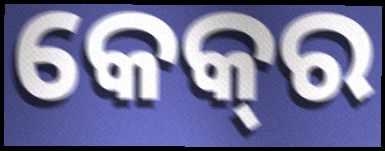
କେକ୍‌ର